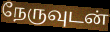
நேருவுடன்